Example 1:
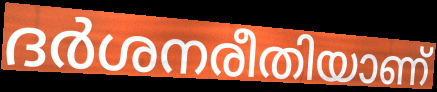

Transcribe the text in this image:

ദർശനരീതിയാണ്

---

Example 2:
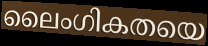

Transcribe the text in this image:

ലൈംഗികതയെ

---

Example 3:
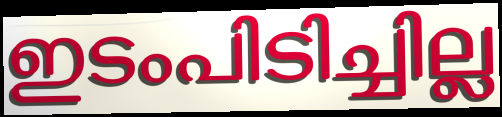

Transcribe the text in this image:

ഇടംപിടിച്ചില്ല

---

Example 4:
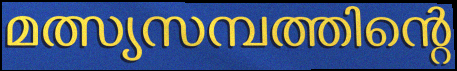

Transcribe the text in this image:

മത്സ്യസമ്പത്തിന്റെ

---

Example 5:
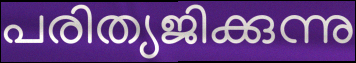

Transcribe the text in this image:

പരിത്യജിക്കുന്നു